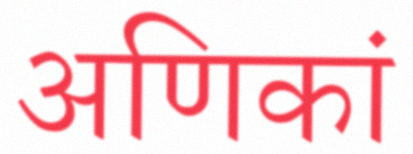
अणिकां